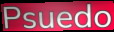
Psuedo